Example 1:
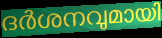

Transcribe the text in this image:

ദർശനവുമായി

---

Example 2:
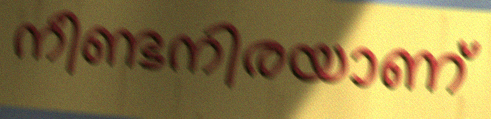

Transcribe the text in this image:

നീണ്ടനിരയാണ്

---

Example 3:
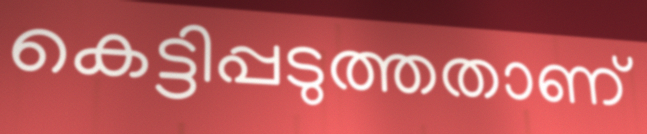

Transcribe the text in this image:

കെട്ടിപ്പടുത്തതാണ്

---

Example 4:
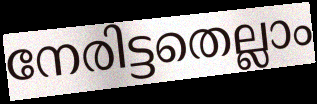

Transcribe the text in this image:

നേരിട്ടതെല്ലാം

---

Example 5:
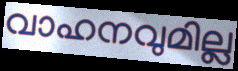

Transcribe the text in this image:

വാഹനവുമില്ല